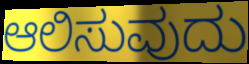
ಆಲಿಸುವುದು